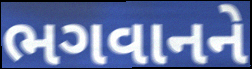
ભગવાનને